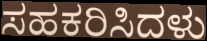
ಸಹಕರಿಸಿದಳು